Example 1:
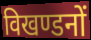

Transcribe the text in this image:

विखण्डनों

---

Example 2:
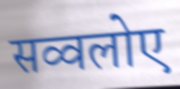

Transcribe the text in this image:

सव्वलोए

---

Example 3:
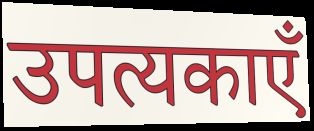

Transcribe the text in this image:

उपत्यकाएँ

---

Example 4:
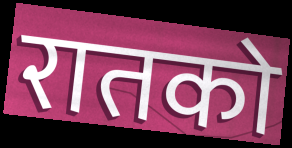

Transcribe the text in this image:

रातको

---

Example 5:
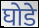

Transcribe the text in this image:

घोडे